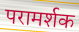
परामर्शक